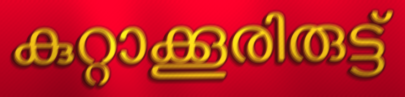
കുറ്റാക്കൂരിരുട്ട്